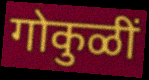
गोकुळीं